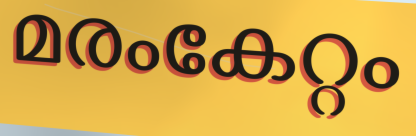
മരംകേറ്റം